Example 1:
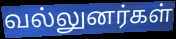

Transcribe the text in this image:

வல்லுனர்கள்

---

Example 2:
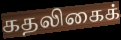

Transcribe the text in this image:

கதலிகைக்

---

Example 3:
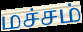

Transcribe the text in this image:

மச்சம்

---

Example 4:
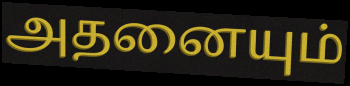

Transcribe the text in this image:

அதனையும்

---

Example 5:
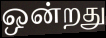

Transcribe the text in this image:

ஒன்றது